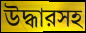
উদ্ধারসহ